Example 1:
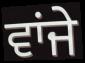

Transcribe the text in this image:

ਵਾਂਜੇ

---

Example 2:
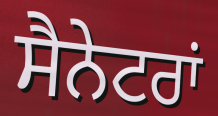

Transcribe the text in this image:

ਸੈਨੇਟਰਾਂ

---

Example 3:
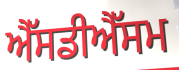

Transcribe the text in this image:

ਐੱਸਡੀਐੱਸਮ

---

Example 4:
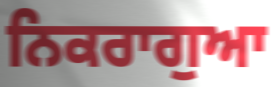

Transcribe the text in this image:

ਨਿਕਰਾਗੁਆ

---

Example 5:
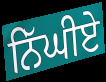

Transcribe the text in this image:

ਨਿੱਘੀਏ